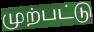
முற்பட்டு